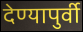
देण्यापुर्वी